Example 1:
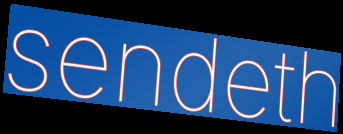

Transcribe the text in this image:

sendeth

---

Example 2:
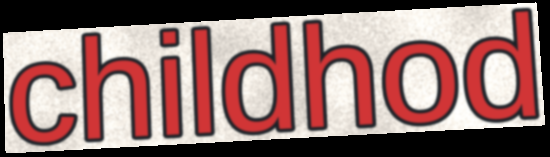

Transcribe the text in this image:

childhod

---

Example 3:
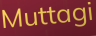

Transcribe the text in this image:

Muttagi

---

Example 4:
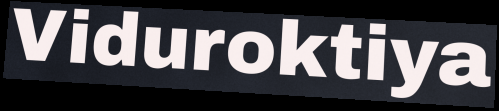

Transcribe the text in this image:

Viduroktiya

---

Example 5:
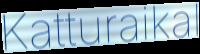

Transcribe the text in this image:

Katturaikal